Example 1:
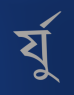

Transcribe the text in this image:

র্যু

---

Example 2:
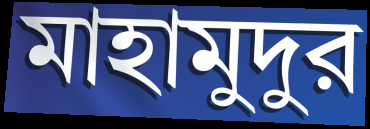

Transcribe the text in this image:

মাহামুদুর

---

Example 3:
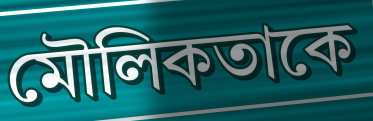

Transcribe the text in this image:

মৌলিকতাকে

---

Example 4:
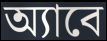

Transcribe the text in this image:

অ্যাবে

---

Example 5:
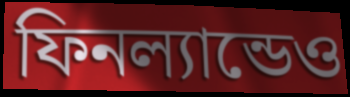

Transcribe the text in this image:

ফিনল্যান্ডেও